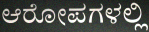
ಆರೋಪಗಳಲ್ಲಿ